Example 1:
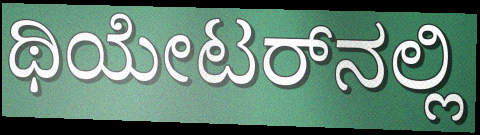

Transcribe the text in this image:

ಥಿಯೇಟರ್‌ನಲ್ಲಿ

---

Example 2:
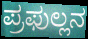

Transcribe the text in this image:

ಪ್ರಫುಲ್ಲನ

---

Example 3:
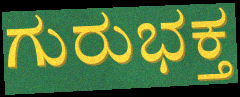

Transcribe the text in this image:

ಗುರುಭಕ್ತ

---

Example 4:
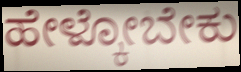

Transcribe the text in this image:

ಹೇಳ್ಕೋಬೇಕು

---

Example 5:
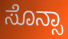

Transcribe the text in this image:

ಸೊನ್ಸಾ